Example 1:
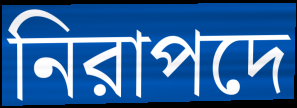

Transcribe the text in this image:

নিরাপদে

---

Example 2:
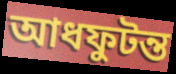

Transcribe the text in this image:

আধফুটন্ত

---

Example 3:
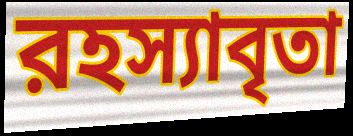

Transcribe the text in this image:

রহস্যাবৃতা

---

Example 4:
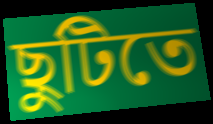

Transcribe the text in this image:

ছুটিতে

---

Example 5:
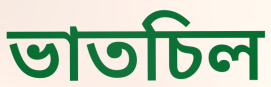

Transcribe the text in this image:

ভাতচিল